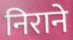
निराने